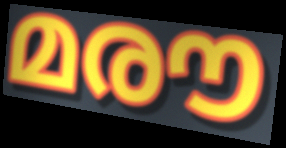
മരൗ